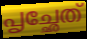
പൃച്ഛേത്